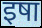
इषा